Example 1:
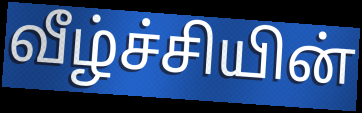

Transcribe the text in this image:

வீழ்ச்சியின்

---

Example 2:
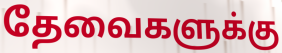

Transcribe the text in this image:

தேவைகளுக்கு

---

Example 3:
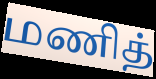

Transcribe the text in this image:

மணித்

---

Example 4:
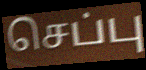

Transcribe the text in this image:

செப்பு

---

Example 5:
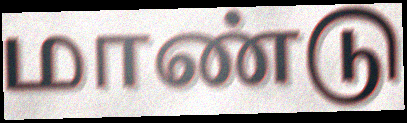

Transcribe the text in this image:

மாண்டு